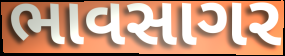
ભાવસાગર